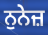
ਨੁਨੇਜ਼